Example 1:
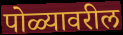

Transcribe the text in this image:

पोळ्यावरील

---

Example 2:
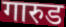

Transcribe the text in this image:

गारुड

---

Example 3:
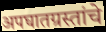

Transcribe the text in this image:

अपघातग्रस्तांचे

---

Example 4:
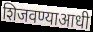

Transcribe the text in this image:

शिजवण्याआधी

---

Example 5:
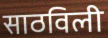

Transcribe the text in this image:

साठविली